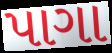
પાગા